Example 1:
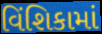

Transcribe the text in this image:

વિંશિકામાં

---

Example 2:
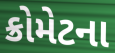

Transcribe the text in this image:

ક્રોમેટના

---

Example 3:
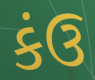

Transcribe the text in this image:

કંઉ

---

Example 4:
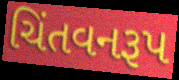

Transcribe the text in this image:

ચિંતવનરૂપ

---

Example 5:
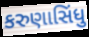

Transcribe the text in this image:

કરુણાસિંધુ